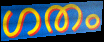
ഗതം